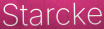
Starcke